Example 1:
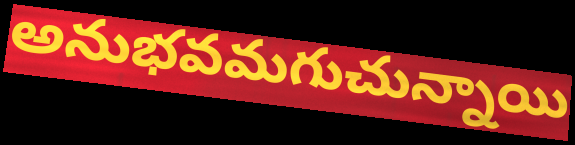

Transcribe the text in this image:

అనుభవమగుచున్నాయి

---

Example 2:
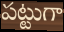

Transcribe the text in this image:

పట్టుగా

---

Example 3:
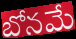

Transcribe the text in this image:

బోనమే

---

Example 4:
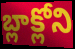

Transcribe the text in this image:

బ్లాక్లోని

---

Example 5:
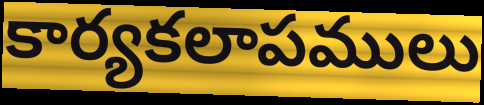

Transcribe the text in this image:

కార్యకలాపములు